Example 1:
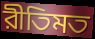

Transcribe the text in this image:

রীতিমত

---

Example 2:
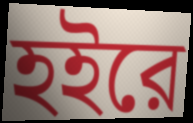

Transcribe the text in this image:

হইরে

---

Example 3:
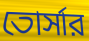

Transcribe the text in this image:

তোর্সার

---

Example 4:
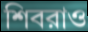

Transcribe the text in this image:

শিবরাও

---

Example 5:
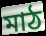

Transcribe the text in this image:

মাঠ